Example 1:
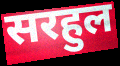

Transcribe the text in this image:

सरहुल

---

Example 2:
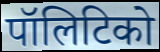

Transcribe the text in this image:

पॉलिटिको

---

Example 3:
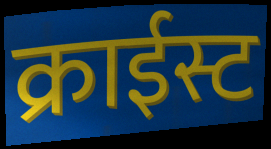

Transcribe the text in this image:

क्राईस्ट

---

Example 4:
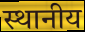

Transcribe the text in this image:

स्‍थानीय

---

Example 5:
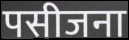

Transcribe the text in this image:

पसीजना